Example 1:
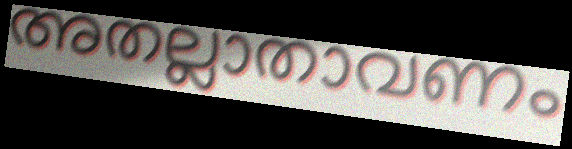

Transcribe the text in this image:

അതല്ലാതാവണം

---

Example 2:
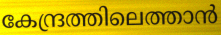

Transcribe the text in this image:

കേന്ദ്രത്തിലെത്താൻ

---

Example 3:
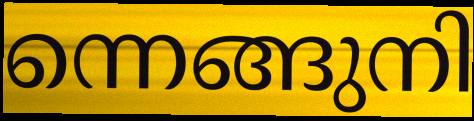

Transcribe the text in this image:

ന്നെങ്ങുനി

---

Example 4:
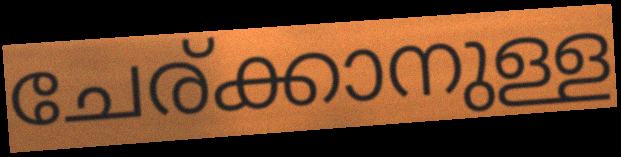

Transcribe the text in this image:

ചേര്ക്കാനുള്ള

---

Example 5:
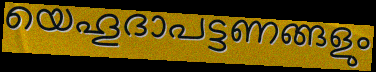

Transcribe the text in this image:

യെഹൂദാപട്ടണങ്ങളും